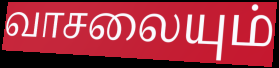
வாசலையும்